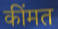
कींमत